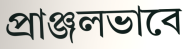
প্রাঞ্জলভাবে